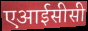
एआईसीसी